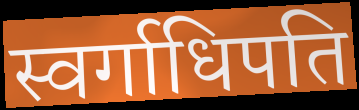
स्वर्गाधिपति